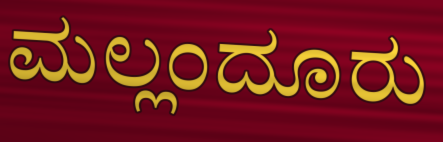
ಮಲ್ಲಂದೂರು